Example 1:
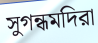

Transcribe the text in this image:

সুগন্ধমদিরা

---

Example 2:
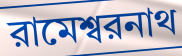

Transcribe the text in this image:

রামেশ্বরনাথ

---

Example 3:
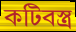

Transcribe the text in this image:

কটিবস্ত্র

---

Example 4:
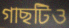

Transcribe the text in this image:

গাছটিও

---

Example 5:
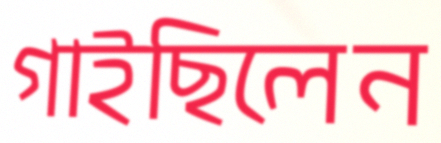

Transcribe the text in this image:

গাইছিলেন